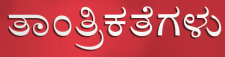
ತಾಂತ್ರಿಕತೆಗಳು